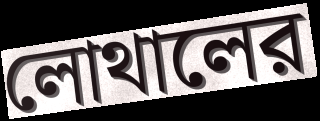
লোথালের